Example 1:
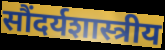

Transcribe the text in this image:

सौंदर्यशास्त्रीय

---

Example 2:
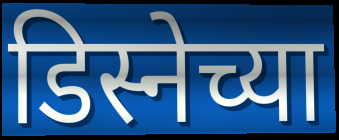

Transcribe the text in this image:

डिस्नेच्या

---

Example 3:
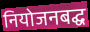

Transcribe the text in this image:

नियोजनबद्घ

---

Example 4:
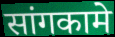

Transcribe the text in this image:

सांगकामे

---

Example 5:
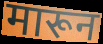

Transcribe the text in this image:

मारून